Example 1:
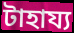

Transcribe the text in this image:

টাহায্য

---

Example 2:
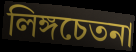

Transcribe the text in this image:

লিঙ্গচেতনা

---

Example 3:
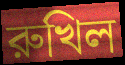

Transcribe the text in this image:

রুখিল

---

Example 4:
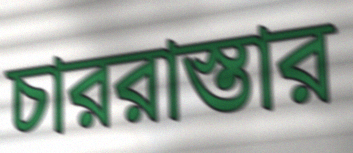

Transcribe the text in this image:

চাররাস্তার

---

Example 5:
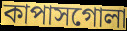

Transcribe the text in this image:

কাপাসগোলা